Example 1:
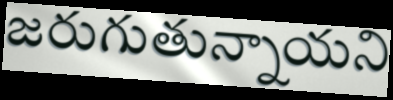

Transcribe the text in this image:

జరుగుతున్నాయని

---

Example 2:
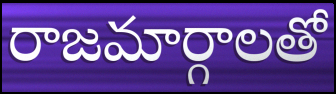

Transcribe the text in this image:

రాజమార్గాలతో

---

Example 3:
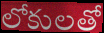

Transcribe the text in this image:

లోకులతో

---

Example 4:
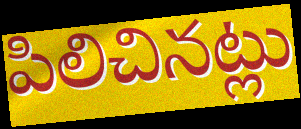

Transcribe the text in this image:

పిలిచినట్లు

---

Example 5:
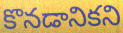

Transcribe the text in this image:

కొనడానికని